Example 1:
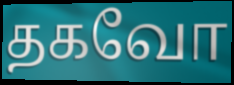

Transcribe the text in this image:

தகவோ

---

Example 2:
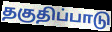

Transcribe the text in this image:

தகுதிப்பாடு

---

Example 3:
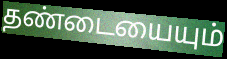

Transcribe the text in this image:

தண்டையையும்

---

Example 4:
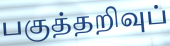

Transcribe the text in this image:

பகுத்தறிவுப்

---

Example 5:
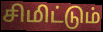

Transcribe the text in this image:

சிமிட்டும்